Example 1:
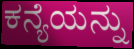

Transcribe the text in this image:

ಕನ್ಯೆಯನ್ನು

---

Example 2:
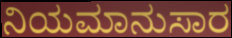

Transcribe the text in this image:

ನಿಯಮಾನುಸಾರ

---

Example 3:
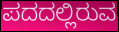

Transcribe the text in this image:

ಪದದಲ್ಲಿರುವ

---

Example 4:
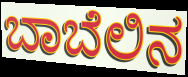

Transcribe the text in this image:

ಬಾಬೆಲಿನ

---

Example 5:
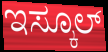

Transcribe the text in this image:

ಇಸ್ಕೂಲ್